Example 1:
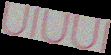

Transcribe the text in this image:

UIUUI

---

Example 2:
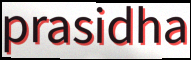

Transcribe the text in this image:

prasidha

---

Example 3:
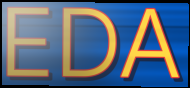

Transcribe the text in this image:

EDA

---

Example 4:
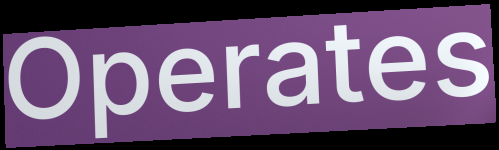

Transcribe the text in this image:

Operates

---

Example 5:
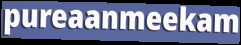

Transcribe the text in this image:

pureaanmeekam